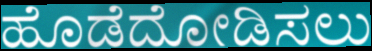
ಹೊಡೆದೋಡಿಸಲು